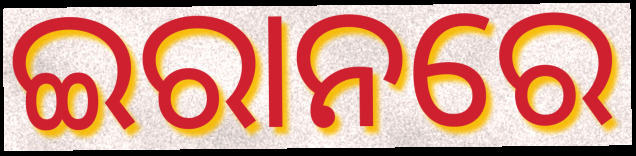
ଇରାନରେ